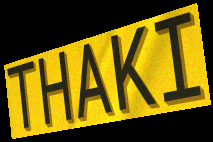
THAKI